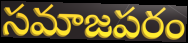
సమాజపరం